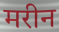
मरीन